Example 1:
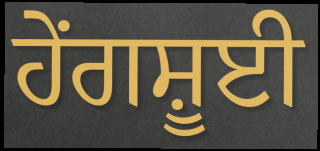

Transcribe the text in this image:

ਹੇਂਗਸ਼ੂਈ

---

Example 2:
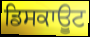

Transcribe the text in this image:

ਡਿਸਕਾਊਟ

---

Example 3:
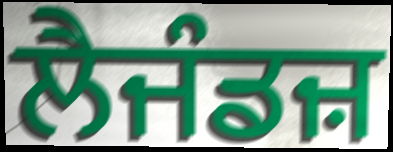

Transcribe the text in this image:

ਲੈਜੰਡਜ਼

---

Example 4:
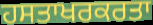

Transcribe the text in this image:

ਹਸਤਾਖਰਕਰਤਾ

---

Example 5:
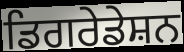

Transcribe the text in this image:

ਡਿਗਰੇਡੇਸ਼ਨ